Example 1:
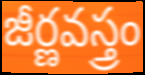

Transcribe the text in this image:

జీర్ణవస్త్రం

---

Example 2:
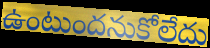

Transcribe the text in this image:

ఉంటుందనుకోలేదు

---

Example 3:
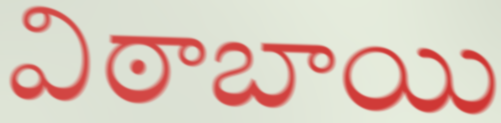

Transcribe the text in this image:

విఠాబాయి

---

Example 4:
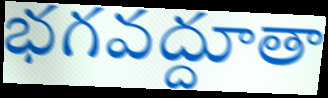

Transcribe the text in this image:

భగవద్దూతా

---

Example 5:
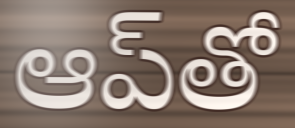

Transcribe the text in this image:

ఆప్‌తో